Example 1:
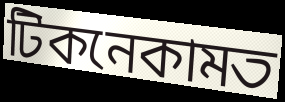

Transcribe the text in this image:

টিকনেকামত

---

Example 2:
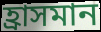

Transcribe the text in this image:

হ্ৰাসমান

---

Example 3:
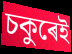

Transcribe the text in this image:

চকুৰেই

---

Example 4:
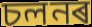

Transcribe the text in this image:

চলনৰ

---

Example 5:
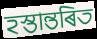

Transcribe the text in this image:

হস্তান্তৰিত